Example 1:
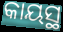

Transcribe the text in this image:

କାୟସ୍ଥ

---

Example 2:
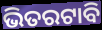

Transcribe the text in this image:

ଭିତରଟାବି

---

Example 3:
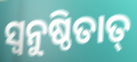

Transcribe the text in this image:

ସ୍ଵନୁଷ୍ଠିତାତ୍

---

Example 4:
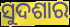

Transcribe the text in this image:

ସୁଦଶାର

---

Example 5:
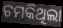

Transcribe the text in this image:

ଚମକିଥିଲା